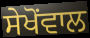
ਸੇਖੋਂਵਾਲ